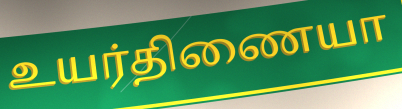
உயர்திணையா